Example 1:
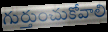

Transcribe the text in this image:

గుర్తుంచుకోవాలి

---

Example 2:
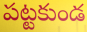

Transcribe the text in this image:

పట్టకుండ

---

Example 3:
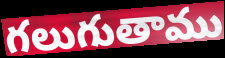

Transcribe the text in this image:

గలుగుతాము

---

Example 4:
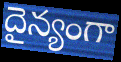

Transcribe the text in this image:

దైన్యంగా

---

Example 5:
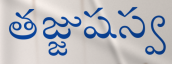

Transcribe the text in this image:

తజ్జుషస్వ